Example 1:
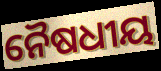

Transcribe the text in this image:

ନୈଷଧୀୟ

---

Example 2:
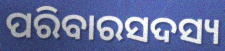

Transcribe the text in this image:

ପରିବାରସଦସ୍ୟ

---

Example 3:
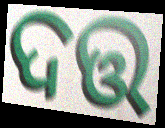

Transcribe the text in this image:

ଦତ୍ତ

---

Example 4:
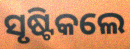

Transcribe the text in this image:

ସୃଷ୍ଟିକଲେ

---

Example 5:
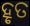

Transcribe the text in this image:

ହୃତ